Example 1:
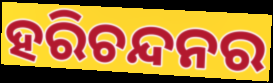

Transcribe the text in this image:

ହରିଚନ୍ଦନର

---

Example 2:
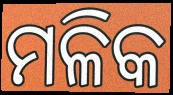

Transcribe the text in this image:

ମଳିକ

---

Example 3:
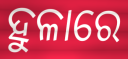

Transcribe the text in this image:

ହୁଳାରେ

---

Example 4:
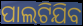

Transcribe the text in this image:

ପାଲଟିଯିବ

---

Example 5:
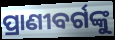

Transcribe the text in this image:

ପ୍ରାଣୀବର୍ଗଙ୍କୁ